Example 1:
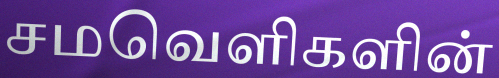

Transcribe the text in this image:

சமவெளிகளின்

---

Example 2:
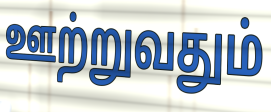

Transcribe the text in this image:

ஊற்றுவதும்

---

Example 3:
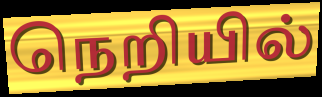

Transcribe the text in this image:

நெறியில்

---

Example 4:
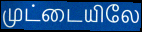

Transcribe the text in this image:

முட்டையிலே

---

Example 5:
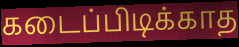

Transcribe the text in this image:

கடைப்பிடிக்காத